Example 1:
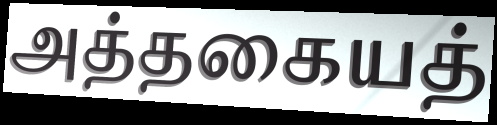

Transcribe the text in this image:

அத்தகையத்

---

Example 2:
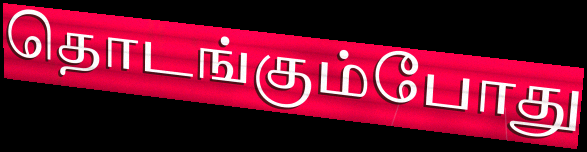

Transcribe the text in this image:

தொடங்கும்போது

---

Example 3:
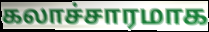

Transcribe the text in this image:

கலாச்சாரமாக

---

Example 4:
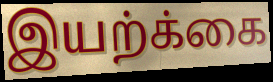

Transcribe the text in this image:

இயற்க்கை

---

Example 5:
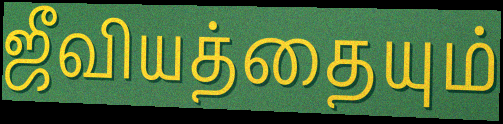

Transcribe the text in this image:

ஜீவியத்தையும்